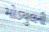
મોડ્યુલની